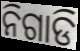
ନିଗାଡି